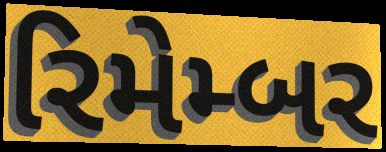
રિમેમ્બર